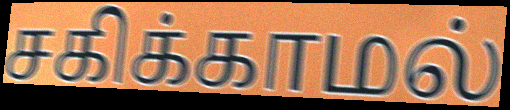
சகிக்காமல்